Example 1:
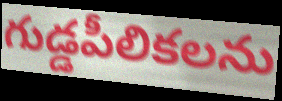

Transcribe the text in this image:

గుడ్డపీలికలను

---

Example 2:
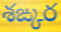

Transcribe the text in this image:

శఙ్కర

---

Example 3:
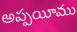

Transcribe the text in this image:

అప్పయీము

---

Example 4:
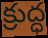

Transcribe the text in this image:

క్రుద్ధ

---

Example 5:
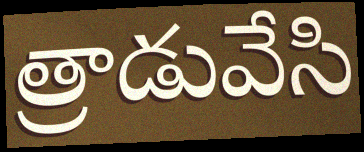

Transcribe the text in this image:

త్రాడువేసి